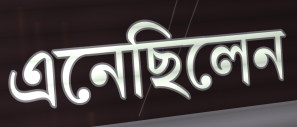
এনেছিলেন